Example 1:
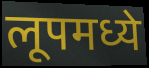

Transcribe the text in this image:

लूपमध्ये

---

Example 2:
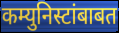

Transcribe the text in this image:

कम्युनिस्टांबाबत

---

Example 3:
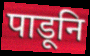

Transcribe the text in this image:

पाडूनि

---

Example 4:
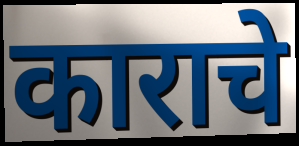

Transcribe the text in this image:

काराचे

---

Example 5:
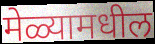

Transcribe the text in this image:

मेळ्यामधील